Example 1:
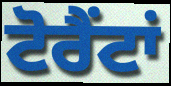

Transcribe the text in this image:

ਟੋਰੈਂਟਾਂ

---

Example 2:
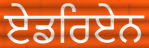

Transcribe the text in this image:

ਏਡਰਿਏਨ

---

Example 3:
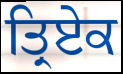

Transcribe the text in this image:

ਤ੍ਰਿਏਕ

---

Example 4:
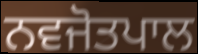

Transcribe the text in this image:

ਨਵਜੋਤਪਾਲ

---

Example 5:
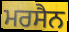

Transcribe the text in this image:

ਮਰਸੈਨ